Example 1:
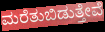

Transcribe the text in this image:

ಮರೆತುಬಿಡುತ್ತೇವೆ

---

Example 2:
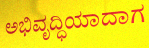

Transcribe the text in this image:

ಅಭಿವೃದ್ಧಿಯಾದಾಗ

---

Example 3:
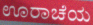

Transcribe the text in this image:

ಊರಾಚೆಯ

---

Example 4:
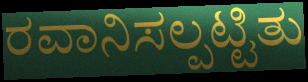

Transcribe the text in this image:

ರವಾನಿಸಲ್ಪಟ್ಟಿತು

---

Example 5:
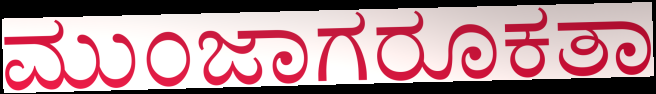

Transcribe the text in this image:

ಮುಂಜಾಗರೂಕತಾ